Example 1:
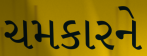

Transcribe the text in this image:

ચમકારને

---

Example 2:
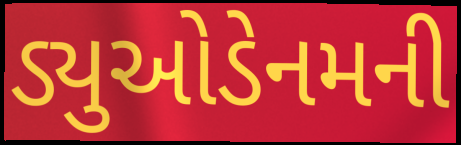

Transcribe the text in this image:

ડ્યુઓડેનમની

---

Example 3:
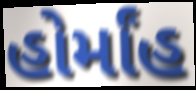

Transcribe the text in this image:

હોર્માંહ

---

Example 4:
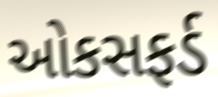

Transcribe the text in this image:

ઓકસફર્ડ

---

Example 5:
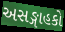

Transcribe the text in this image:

અસઙ્ગાહકો